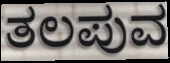
ತಲಪುವ